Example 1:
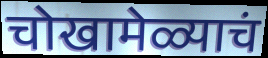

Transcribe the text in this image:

चोखामेळ्याचं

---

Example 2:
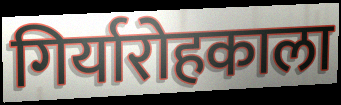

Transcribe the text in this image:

गिर्यारोहकाला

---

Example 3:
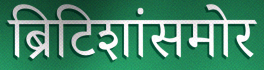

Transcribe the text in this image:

ब्रिटिशांसमोर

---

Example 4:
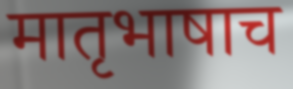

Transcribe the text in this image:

मातृभाषाच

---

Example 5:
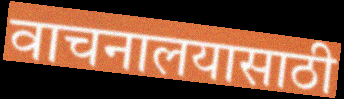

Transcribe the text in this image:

वाचनालयासाठी